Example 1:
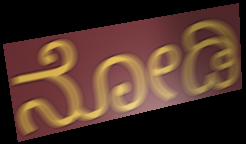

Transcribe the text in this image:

ನೋಡಿ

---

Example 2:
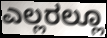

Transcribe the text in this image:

ಎಲ್ಲರಲ್ಲೂ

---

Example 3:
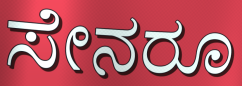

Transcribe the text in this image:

ಸೇನರೂ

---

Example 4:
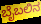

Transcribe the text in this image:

ಬೈಬಲಿನ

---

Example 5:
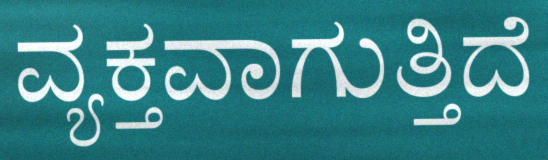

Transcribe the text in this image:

ವ್ಯಕ್ತವಾಗುತ್ತಿದೆ